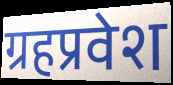
ग्रहप्रवेश